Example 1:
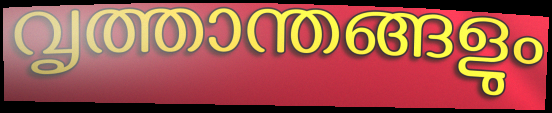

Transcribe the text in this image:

വൃത്താന്തങ്ങളും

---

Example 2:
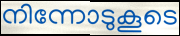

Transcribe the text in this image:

നിന്നോടുകൂടെ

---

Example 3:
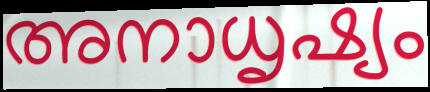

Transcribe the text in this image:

അനാധൃഷ്യം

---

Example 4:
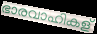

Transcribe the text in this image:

ഭാരവാഹികള്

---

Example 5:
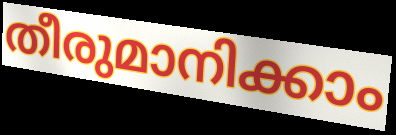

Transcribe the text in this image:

തീരുമാനിക്കാം